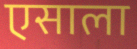
एसाला